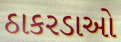
ઠાકરડાઓ